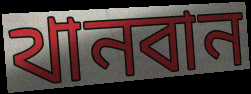
থানবান